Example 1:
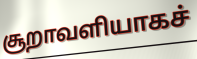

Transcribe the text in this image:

சூறாவளியாகச்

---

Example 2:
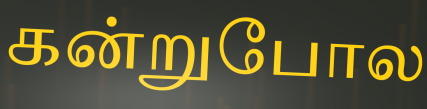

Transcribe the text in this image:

கன்றுபோல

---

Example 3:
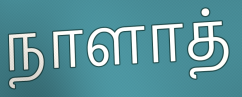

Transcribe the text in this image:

நாளாத்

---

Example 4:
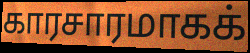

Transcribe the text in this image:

காரசாரமாகக்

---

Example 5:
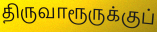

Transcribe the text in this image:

திருவாரூருக்குப்